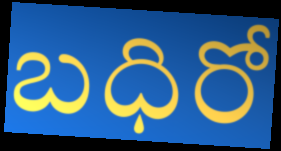
బధిరో